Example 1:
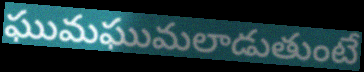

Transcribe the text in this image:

ఘుమఘుమలాడుతుంటే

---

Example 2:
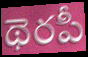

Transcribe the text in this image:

థెరపీ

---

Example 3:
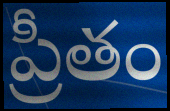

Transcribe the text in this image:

ప్రీతం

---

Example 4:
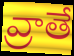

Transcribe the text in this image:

వ్రాతే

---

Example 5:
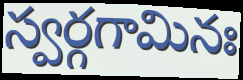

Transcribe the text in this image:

స్వర్గగామినః